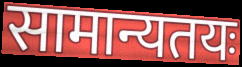
सामान्यतयः